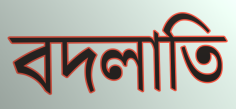
বদলাতি